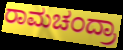
ರಾಮಚಂದ್ರಾ